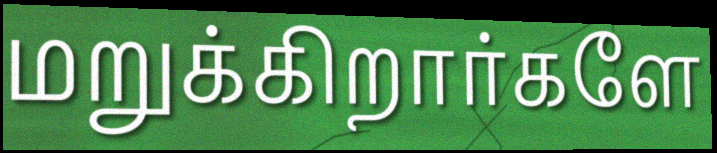
மறுக்கிறார்களே